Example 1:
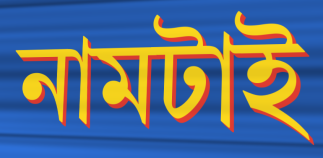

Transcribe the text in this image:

নামটাই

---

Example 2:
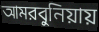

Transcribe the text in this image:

আমরবুনিয়ায়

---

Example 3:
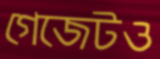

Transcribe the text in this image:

গেজেটও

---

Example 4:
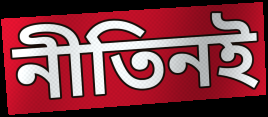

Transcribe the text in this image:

নীতিনই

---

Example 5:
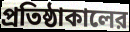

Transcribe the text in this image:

প্রতিষ্ঠাকালের